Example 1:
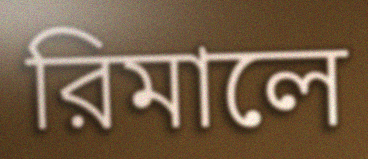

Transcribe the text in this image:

রিমালে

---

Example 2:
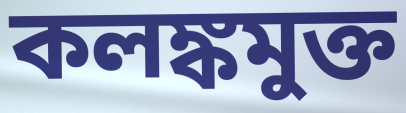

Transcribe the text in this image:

কলঙ্কমুক্ত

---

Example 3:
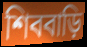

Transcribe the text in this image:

শিববাড়ি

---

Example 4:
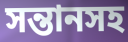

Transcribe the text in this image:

সন্তানসহ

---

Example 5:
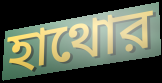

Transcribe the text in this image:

হাথোর